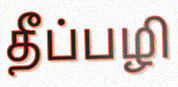
தீப்பழி